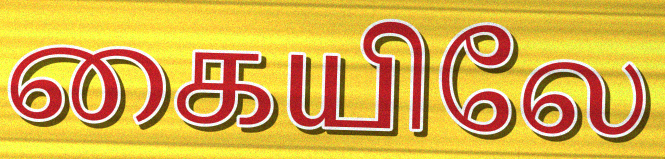
கையிலே